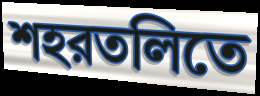
শহরতলিতে